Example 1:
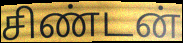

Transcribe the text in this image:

சிண்டன்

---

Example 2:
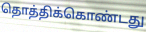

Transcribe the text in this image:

தொத்திக்கொண்டது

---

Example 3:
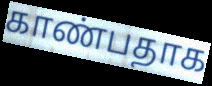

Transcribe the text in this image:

காண்பதாக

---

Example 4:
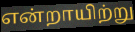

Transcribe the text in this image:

என்றாயிற்று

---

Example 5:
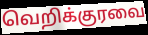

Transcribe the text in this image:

வெறிக்குரவை